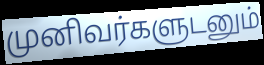
முனிவர்களுடனும்